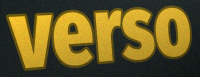
verso